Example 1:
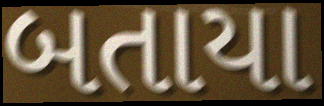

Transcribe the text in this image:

બતાયા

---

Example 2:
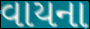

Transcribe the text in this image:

વાયના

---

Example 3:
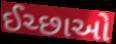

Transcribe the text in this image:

ઈચ્છાઓ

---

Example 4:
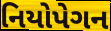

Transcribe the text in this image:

નિયોપેગન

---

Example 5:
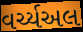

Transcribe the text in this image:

વર્ચ્યઅલ